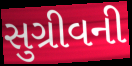
સુગ્રીવની